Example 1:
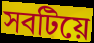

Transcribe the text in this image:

সবটিয়ে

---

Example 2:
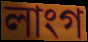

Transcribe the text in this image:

লাংগ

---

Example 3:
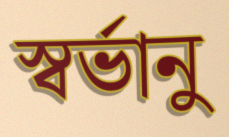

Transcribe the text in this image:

স্বর্ভানু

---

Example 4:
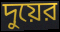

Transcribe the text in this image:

দুয়ের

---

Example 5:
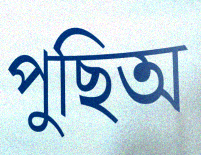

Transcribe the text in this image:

পুছিঅ